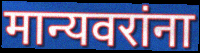
मान्यवरांना